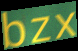
bzx